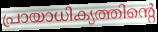
പ്രായാധിക്യത്തിന്റെ